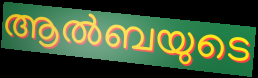
ആൽബയുടെ